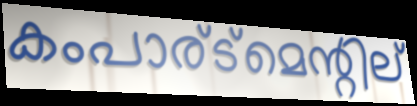
കംപാര്ട്മെന്റില്